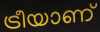
ട്രീയാണ്